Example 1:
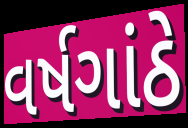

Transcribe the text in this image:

વર્ષગાંઠે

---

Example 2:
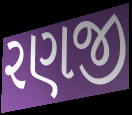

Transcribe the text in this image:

રણજી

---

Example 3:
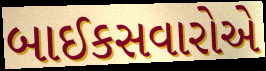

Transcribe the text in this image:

બાઈકસવારોએ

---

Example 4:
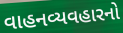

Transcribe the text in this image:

વાહનવ્યવહારનો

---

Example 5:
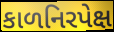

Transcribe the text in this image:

કાળનિરપેક્ષ